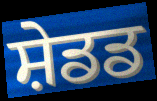
ਸ਼ੇਡਡ